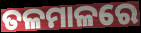
ତଳମାଳରେ